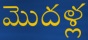
మొదళ్ల